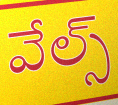
వేల్స్